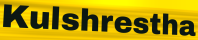
Kulshrestha